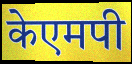
केएमपी